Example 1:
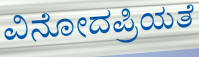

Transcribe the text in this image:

ವಿನೋದಪ್ರಿಯತೆ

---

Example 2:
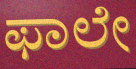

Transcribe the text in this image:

ಫಾಲೇ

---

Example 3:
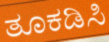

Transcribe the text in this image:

ತೂಕಡಿಸಿ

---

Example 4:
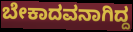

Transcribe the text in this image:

ಬೇಕಾದವನಾಗಿದ್ದ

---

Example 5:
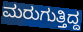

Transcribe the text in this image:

ಮರುಗುತ್ತಿದ್ದ